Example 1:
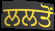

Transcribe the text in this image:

ਲਲਤੋਂ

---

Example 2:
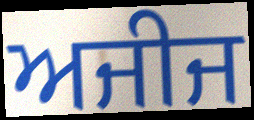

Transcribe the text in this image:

ਅਜੀਜ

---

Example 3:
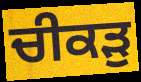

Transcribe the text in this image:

ਚੀਕੜੁ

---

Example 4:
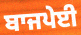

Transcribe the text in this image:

ਬਾਜਪੇਈ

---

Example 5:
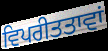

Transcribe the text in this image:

ਵਿਪਰੀਤਤਾਵਾਂ